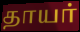
தாயர்